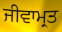
ਜੀਵਾਮ੍ਰਤ